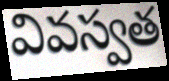
వివస్వత